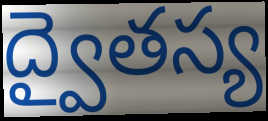
ద్వైతస్య